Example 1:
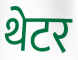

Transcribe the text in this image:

थेटर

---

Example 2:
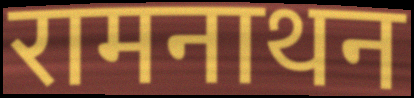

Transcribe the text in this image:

रामनाथन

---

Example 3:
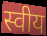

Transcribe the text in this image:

स्वीय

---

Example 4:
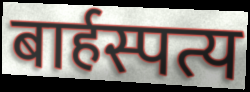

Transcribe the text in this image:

बार्हस्पत्य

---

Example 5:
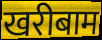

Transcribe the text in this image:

खरीबाम